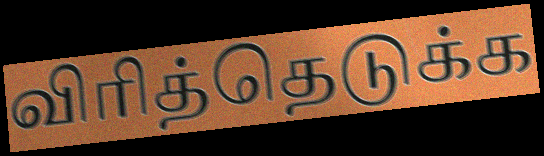
விரித்தெடுக்க